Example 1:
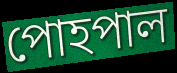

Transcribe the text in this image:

পোহপাল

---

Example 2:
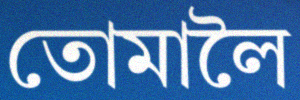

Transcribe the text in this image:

তোমালৈ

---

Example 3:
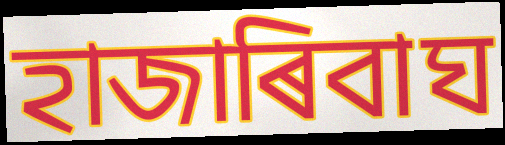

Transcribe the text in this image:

হাজাৰিবাঘ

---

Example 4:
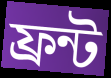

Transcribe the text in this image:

ফ্ৰন্ট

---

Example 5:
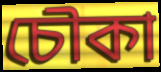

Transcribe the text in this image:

চৌকা